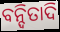
ବନ୍ଦିତାଦି